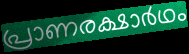
പ്രാണരക്ഷാർഥം